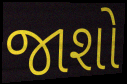
જાશો